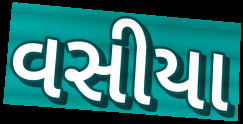
વસીયા